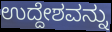
ಉದ್ದೇಶವನ್ನು